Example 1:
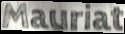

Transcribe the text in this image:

Mauriat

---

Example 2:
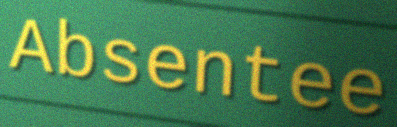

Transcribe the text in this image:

Absentee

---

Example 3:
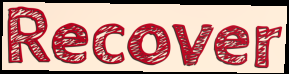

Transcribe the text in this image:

Recover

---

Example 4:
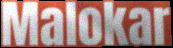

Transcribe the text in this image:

Malokar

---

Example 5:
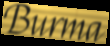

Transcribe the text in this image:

Burma